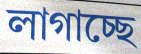
লাগাচ্ছে